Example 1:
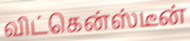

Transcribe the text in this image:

விட்கென்ஸ்டீன்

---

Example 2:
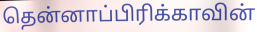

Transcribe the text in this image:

தென்னாப்பிரிக்காவின்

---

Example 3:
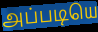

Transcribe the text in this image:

அப்படியெ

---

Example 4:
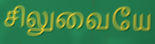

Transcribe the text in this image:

சிலுவையே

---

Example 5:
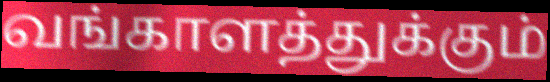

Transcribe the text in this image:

வங்காளத்துக்கும்